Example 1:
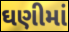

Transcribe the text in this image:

ઘણીમાં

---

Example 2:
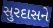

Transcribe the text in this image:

સુરદાસને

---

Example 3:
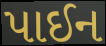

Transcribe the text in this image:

પાઈન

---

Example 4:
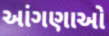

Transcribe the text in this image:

આંગણાઓ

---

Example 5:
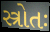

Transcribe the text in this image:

સ્ત્રોતઃ